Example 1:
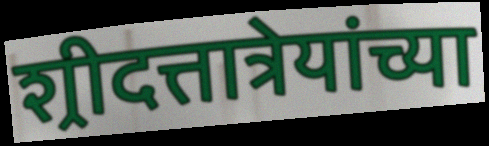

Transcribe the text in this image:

श्रीदत्तात्रेयांच्या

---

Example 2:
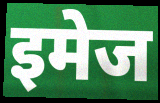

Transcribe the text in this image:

इमेज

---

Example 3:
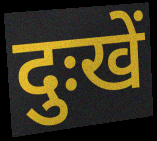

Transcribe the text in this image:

दुःखें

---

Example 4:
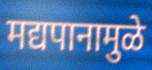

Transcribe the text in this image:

मद्यपानामुळे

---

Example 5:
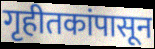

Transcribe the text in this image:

गृहीतकांपासून